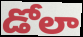
డోలా